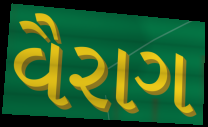
વૈરાગ